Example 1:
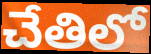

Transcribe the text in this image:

చేతిలో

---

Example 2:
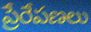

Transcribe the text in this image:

ప్రేరేపణలు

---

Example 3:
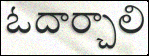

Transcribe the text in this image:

ఓదార్చాలి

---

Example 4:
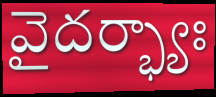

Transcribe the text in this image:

వైదర్భ్యాః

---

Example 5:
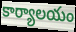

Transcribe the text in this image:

కార్యాలయం